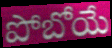
పోబోయే